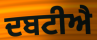
ਦਬਟੀਐ